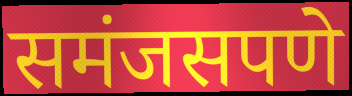
समंजसपणे